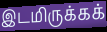
இடமிருக்கக்